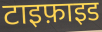
टाइफ़ाइड